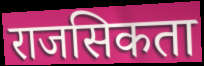
राजसिकता